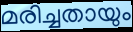
മരിച്ചതായും